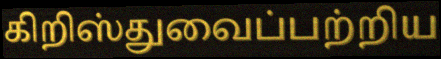
கிறிஸ்துவைப்பற்றிய